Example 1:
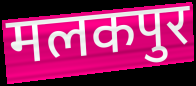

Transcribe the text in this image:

मलकपुर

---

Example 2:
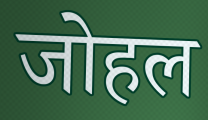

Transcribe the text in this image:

जोहल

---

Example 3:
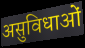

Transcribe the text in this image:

असुविधाओं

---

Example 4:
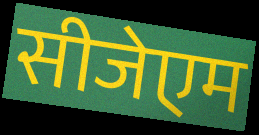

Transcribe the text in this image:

सीजेएम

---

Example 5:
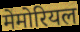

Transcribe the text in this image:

मेमोरियल